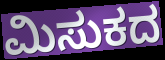
ಮಿಸುಕದ